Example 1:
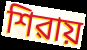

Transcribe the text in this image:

শিৱায়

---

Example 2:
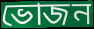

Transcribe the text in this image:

ভোজন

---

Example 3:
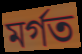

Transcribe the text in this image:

মৰ্গত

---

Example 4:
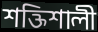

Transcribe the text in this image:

শক্তিশালী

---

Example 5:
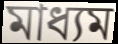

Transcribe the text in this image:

মাধ্যম